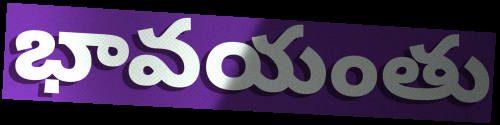
భావయంతు